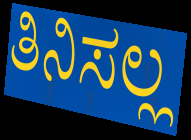
ತಿನಿಸಲ್ಲ